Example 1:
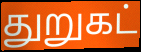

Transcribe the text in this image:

துறுகட்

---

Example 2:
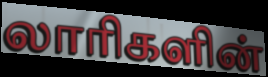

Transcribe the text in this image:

லாரிகளின்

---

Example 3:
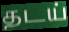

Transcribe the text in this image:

தடய்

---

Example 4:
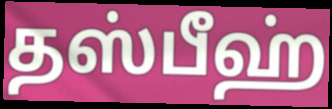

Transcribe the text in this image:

தஸ்பீஹ்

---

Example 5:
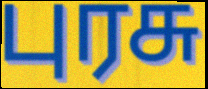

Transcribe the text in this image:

புரசு